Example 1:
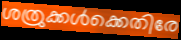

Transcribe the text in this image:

ശത്രുക്കൾക്കെതിരേ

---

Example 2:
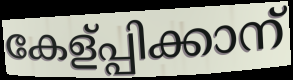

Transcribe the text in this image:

കേള്പ്പിക്കാന്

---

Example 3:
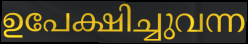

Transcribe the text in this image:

ഉപേക്ഷിച്ചുവന്ന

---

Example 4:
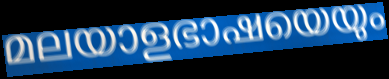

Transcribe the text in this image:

മലയാളഭാഷയെയും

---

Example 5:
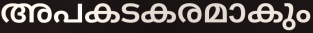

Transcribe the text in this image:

അപകടകരമാകും